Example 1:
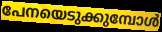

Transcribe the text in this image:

പേനയെടുക്കുമ്പോൾ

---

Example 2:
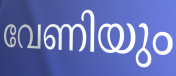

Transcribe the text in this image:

വേണിയും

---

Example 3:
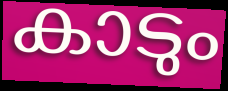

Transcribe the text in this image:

കാടും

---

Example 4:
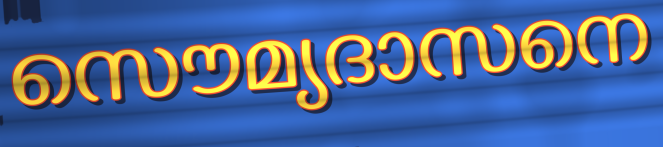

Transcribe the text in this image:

സൌമ്യദാസനെ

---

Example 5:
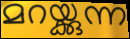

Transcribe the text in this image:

മറയ്ക്കുന്ന